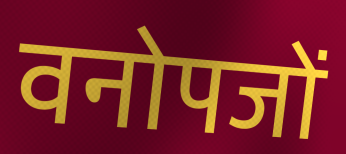
वनोपजों